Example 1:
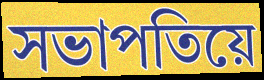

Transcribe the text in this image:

সভাপতিয়ে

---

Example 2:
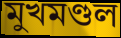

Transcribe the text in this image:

মুখমণ্ডল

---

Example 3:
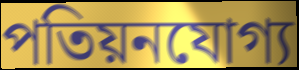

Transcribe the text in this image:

পতিয়নযোগ্য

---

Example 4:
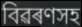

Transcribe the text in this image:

বিৱৰণসহ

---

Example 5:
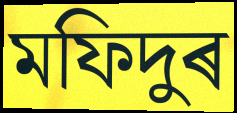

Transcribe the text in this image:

মফিদুৰ